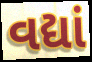
વદ્યાં